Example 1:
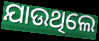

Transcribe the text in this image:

ଯାଉଥିଲେ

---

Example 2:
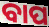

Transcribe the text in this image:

ବାପ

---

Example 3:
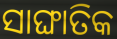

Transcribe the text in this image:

ସାଙ୍ଘାତିକ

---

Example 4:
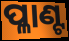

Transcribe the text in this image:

ପ୍ଳାଣ୍ଟ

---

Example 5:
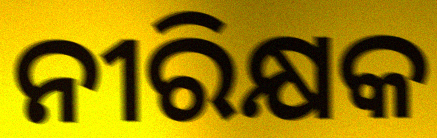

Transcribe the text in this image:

ନୀରିକ୍ଷକ